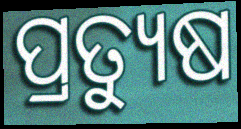
ପ୍ରତ୍ୟୁଷ